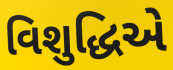
વિશુદ્ધિએ